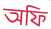
অফি